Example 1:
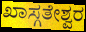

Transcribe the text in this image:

ಖಾಸ್ಗತೇಶ್ವರ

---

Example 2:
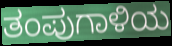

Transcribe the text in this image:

ತಂಪುಗಾಳಿಯ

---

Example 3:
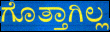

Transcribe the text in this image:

ಗೊತ್ತಾಗಿಲ್ಲ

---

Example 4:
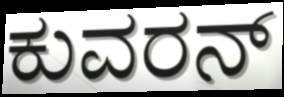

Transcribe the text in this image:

ಕುವರನ್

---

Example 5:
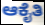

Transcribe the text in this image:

ಆಕೈತಿ